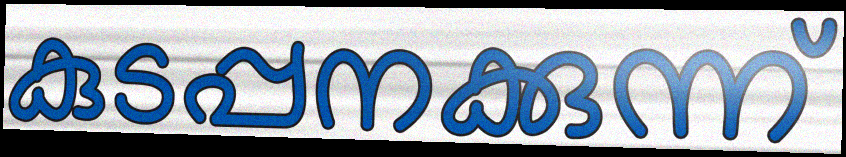
കുടപ്പനക്കുന്ന്